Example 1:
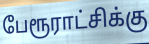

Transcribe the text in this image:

பேரூராட்சிக்கு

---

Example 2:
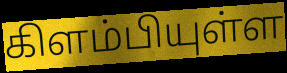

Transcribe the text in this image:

கிளம்பியுள்ள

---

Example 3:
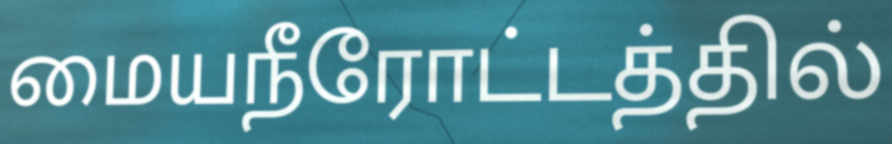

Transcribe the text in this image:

மையநீரோட்டத்தில்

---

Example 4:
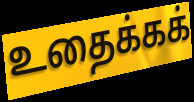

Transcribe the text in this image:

உதைக்கக்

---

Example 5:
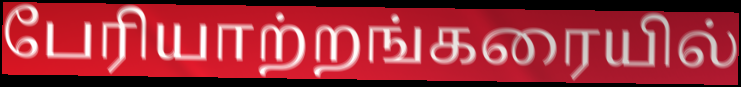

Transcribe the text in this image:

பேரியாற்றங்கரையில்